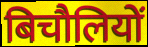
बिचौलियों